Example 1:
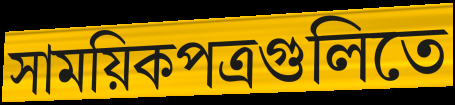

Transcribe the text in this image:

সাময়িকপত্রগুলিতে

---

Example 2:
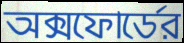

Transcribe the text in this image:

অক্সফোর্ডের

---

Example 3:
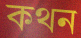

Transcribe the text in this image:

কথন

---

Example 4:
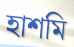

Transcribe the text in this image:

হাশমি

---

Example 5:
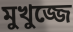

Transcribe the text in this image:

মুখুজ্জে